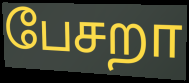
பேசறா